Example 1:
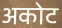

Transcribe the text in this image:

अकोट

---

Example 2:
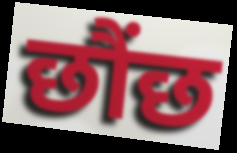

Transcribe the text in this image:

छौंछ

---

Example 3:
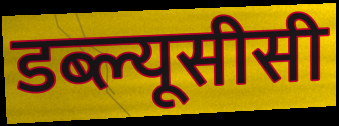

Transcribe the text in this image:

डब्ल्यूसीसी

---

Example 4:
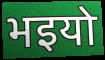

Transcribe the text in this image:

भइयो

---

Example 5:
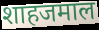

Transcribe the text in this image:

शाहजमाल